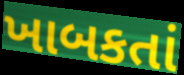
ખાબકતાં